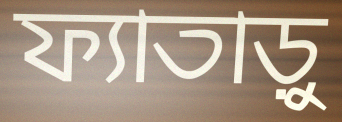
ফ্যাতাড়ু